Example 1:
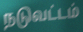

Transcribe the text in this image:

நடுவட்டம்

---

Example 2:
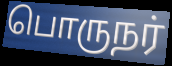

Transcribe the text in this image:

பொருநர்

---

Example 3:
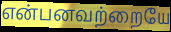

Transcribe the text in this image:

என்பனவற்றையே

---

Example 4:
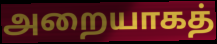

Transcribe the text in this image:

அறையாகத்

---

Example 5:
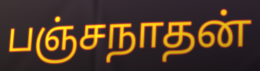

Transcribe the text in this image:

பஞ்சநாதன்